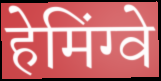
हेमिंग्वे